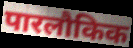
पारलौकिक